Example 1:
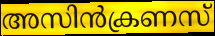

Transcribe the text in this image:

അസിൻക്രണസ്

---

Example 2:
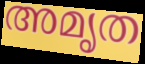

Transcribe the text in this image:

അമൃത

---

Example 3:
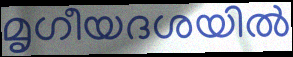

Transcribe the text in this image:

മൃഗീയദശയിൽ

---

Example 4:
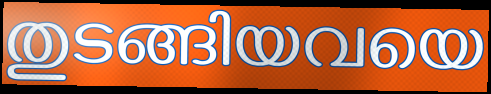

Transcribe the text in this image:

തുടങ്ങിയവയെ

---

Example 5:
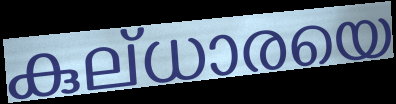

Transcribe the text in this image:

കുല്ധാരയെ